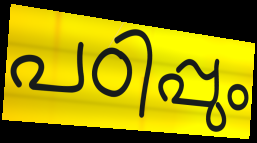
പഠിപ്പും